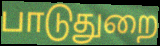
பாடுதுறை